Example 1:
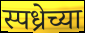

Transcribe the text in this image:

स्पध्रेच्या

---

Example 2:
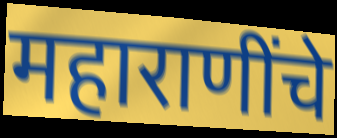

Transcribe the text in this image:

महाराणींचे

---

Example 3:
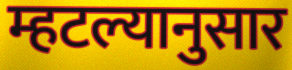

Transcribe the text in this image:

म्हटल्यानुसार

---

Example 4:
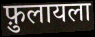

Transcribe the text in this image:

फ़ुलायला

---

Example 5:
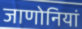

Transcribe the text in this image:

जाणोनियां